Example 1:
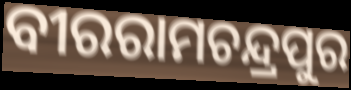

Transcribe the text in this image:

ବୀରରାମଚନ୍ଦ୍ରପୁର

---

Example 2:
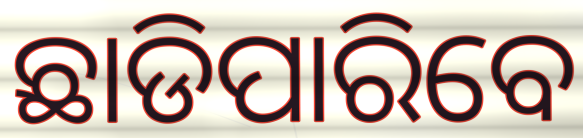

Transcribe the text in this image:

ଛାଡିପାରିବେ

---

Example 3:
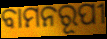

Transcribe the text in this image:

ବାମନରୂପୀ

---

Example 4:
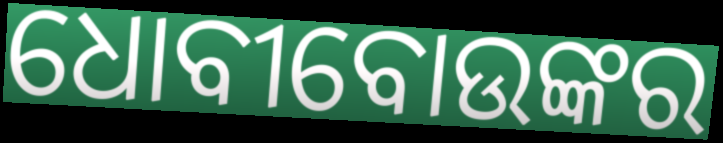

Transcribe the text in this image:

ଧୋବୀବୋଉଙ୍କର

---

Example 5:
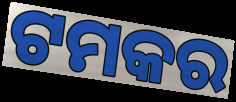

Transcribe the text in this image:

ଟମକର